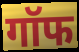
गॉफ